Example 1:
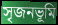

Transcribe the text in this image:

সৃজনভূমি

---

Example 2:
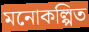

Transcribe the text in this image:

মনোকল্পিত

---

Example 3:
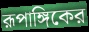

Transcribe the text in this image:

রূপাঙ্গিকের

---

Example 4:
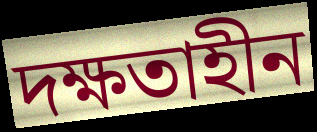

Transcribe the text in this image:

দক্ষতাহীন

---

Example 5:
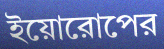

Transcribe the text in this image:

ইয়োরোপের